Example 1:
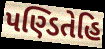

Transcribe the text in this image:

પણ્ડિતેહિ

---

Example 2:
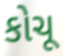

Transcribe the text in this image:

કોચૂ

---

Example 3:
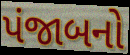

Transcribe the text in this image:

પંજાબનો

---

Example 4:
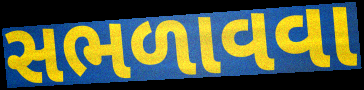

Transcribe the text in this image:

સભળાવવા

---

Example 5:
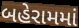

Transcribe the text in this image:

બહેરામમાં